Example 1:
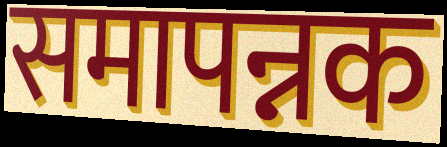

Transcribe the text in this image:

समापन्नक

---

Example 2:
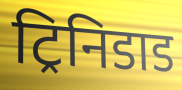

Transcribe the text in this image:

ट्रिनिडाड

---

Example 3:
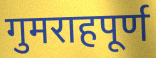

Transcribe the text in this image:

गुमराहपूर्ण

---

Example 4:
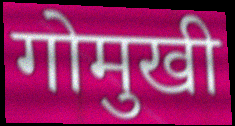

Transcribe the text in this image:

गोमुखी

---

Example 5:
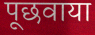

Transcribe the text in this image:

पूछवाया